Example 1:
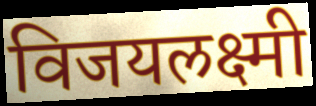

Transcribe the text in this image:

विजयलक्ष्मी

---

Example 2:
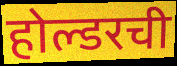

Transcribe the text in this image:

होल्डरची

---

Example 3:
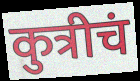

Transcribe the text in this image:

कुत्रीचं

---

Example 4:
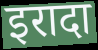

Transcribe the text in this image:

इरादा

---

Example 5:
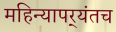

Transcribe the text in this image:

महिन्यापर्यंतच